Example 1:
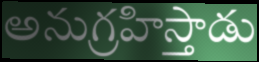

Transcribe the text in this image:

అనుగ్రహిస్తాడు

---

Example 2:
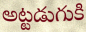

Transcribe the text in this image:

అట్టడుగుకి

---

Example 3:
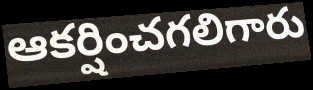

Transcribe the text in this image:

ఆకర్షించగలిగారు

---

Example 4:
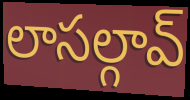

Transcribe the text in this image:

లాసల్గావ్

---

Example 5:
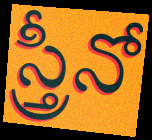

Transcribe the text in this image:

స్త్రీనో